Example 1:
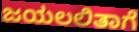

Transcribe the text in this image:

ಜಯಲಲಿತಾಗೆ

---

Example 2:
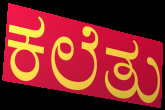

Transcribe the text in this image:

ಕಲೆತು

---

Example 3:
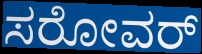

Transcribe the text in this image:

ಸರೋವರ್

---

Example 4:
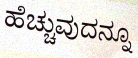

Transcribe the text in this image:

ಹೆಚ್ಚುವುದನ್ನೂ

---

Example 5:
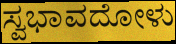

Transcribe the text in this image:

ಸ್ವಭಾವದೋಳು